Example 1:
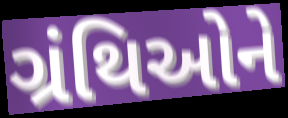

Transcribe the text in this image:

ગ્રંથિઓને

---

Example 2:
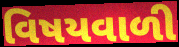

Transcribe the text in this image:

વિષયવાળી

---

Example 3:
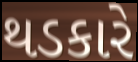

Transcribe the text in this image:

થડકારે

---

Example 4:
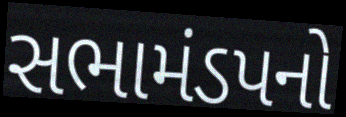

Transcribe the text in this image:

સભામંડપનો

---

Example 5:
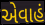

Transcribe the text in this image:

એવાહં